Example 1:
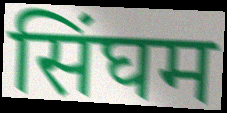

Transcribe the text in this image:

सिंघम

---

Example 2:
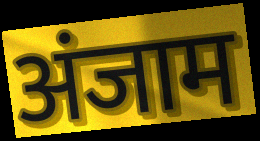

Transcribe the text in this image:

अंजाम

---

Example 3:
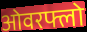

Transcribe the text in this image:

ओवरफ्लो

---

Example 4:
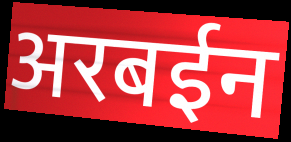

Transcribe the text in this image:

अरबईन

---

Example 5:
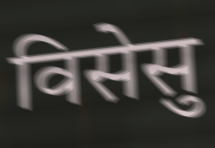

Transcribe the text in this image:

विसेसु